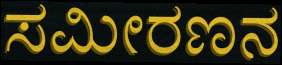
ಸಮೀರಣನ